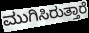
ಮುಗಿಸಿರುತ್ತಾರೆ